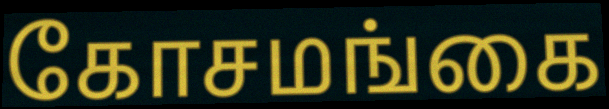
கோசமங்கை